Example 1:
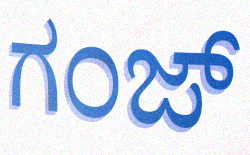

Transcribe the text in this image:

ಗಂಜ್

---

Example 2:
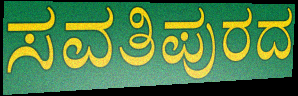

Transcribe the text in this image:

ಸವತಿಪುರದ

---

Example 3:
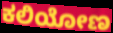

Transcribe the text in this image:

ಕಲಿಯೋಣ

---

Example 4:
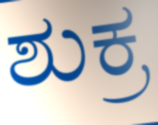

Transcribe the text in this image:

ಶುಕ್ರ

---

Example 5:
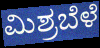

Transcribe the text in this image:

ಮಿಶ್ರಬೆಳೆ